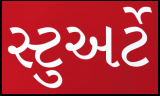
સ્ટુઅર્ટે